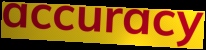
accuracy